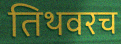
तिथवरच